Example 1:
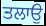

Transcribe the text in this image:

ਤਲਾਉ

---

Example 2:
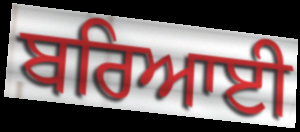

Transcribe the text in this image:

ਬਰਿਆਈ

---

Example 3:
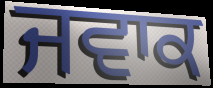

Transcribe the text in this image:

ਜਵਾਕ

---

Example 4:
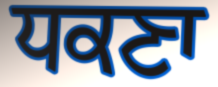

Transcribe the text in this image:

ਧਕਣਾ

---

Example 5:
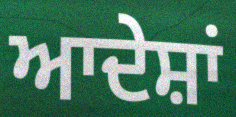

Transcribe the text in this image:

ਆਦੇਸ਼ਾਂ